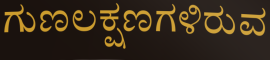
ಗುಣಲಕ್ಷಣಗಳಿರುವ